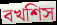
বখশিস